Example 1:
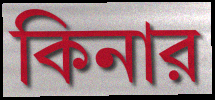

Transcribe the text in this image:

কিনার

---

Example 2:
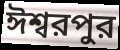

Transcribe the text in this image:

ঈশ্বরপুর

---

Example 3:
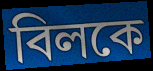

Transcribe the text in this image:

বিলকে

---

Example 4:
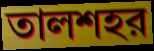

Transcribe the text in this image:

তালশহর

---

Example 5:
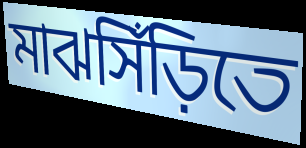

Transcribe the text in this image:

মাঝসিঁড়িতে